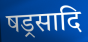
षड्रसादि